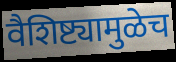
वैशिष्ट्यामुळेच